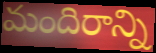
మందిరాన్ని